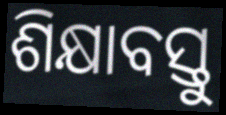
ଶିକ୍ଷାବସ୍ତୁ